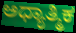
ಅಧ್ಯಾತ್ಮಿಕ